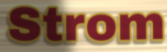
Strom